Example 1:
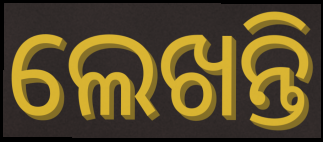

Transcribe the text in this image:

ଲେଖନ୍ତି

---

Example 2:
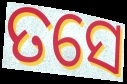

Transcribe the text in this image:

ତସେ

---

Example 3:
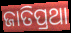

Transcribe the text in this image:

ଜାତିପ୍ରଥା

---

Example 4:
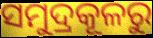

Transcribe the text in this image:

ସମୁଦ୍ରକୂଳରୁ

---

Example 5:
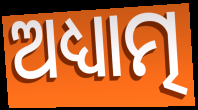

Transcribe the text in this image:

ଅଧ୍ୟାତ୍ମ